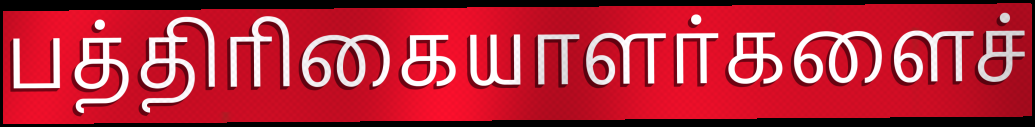
பத்திரிகையாளர்களைச்